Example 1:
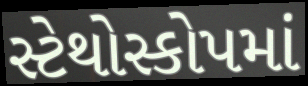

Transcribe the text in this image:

સ્ટેથોસ્કોપમાં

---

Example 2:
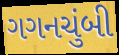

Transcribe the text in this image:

ગગનચુંબી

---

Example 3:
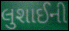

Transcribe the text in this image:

લુશાઈની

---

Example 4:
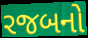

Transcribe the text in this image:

રજબનો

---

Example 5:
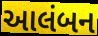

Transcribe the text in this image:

આલંબન